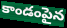
కాండంపైన